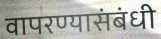
वापरण्यासंबंधी